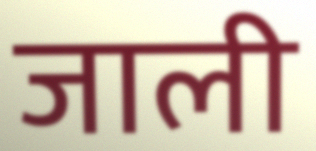
जाली